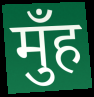
मुँह